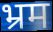
भ्रम